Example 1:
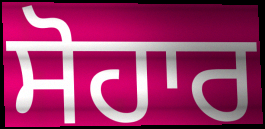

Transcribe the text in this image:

ਸੋਹਾਰ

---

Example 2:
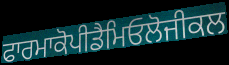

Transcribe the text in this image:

ਫਾਰਮਾਕੋਪੀਡੈਮਿਓਲੋਜੀਕਲ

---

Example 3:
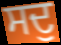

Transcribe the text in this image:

ਸਦੁ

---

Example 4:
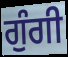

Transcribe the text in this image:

ਗੁੰਗੀ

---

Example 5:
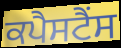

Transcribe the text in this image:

ਕਪੈਸਟੈਂਸ